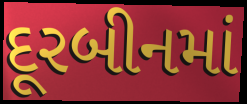
દૂરબીનમાં